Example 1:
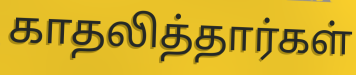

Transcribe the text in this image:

காதலித்தார்கள்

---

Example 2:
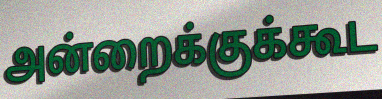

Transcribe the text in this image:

அன்றைக்குக்கூட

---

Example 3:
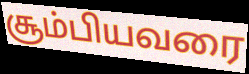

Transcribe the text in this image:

சூம்பியவரை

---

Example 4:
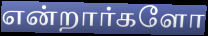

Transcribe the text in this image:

என்றார்களோ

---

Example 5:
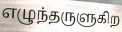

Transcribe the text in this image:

எழுந்தருளுகிற